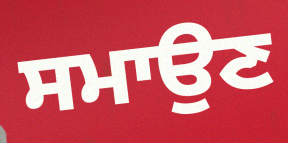
ਸਮਾਉਣ